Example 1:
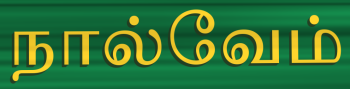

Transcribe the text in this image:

நால்வேம்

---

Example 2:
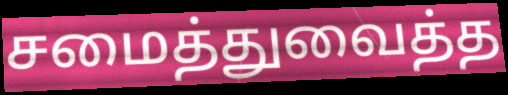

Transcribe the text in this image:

சமைத்துவைத்த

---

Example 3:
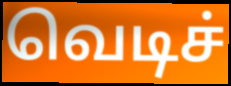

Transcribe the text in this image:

வெடிச்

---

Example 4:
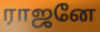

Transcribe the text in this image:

ராஜனே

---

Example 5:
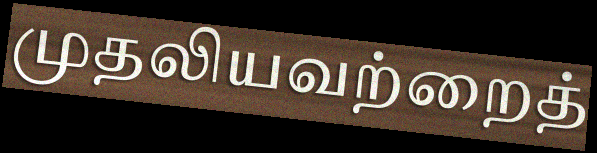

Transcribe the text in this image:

முதலியவற்றைத்